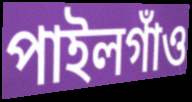
পাইলগাঁও